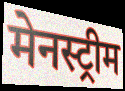
मेनस्‍ट्रीम